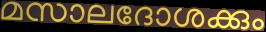
മസാലദോശക്കും